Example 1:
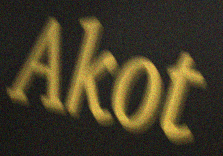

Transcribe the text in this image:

Akot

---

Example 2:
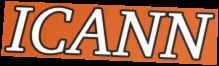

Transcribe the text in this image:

ICANN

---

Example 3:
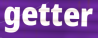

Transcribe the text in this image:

getter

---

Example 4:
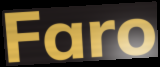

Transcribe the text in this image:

Faro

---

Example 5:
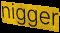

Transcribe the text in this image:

nigger